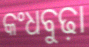
କଂଧବୁଢ଼ା